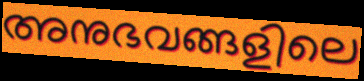
അനുഭവങ്ങളിലെ